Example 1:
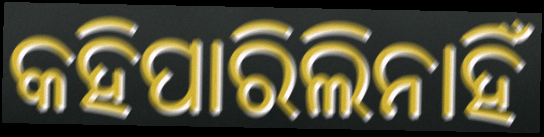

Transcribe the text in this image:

କହିପାରିଲିନାହିଁ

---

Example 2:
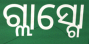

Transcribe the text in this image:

ଗ୍ଲାସ୍ଗୋ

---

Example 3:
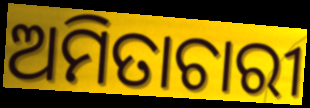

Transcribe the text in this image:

ଅମିତାଚାରୀ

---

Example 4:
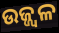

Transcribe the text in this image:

ଉଜ୍ଜ୍ବଳ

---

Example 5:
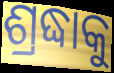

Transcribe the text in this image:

ଶ୍ରଦ୍ଧାକୁ